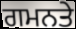
ਗਮਨਤੇ